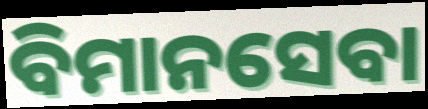
ବିମାନସେବା